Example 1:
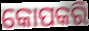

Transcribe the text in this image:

କୋପକରି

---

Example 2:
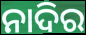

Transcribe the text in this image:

ନାଦିର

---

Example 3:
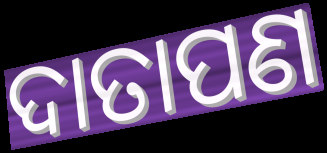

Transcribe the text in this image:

ଦାତାପଣ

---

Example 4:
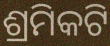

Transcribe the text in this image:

ଶ୍ରମିକଟି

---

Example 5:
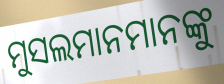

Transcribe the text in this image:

ମୁସଲମାନମାନଙ୍କୁ